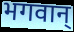
भगवान्